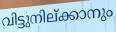
വിട്ടുനില്ക്കാനും